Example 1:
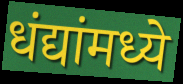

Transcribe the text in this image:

धंद्यांमध्ये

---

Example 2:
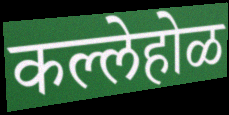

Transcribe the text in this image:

कल्लेहोळ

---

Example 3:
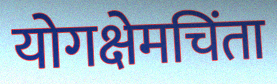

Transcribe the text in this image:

योगक्षेमचिंता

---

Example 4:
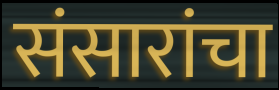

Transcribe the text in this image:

संसारांचा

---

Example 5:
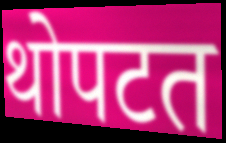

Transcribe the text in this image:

थोपटत